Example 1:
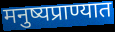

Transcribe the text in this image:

मनुष्यप्राण्यात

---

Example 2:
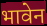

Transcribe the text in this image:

भावेन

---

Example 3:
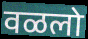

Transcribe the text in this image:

वळलो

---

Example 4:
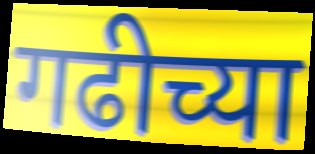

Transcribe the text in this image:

गढीच्या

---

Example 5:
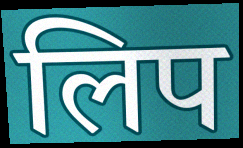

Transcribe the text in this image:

लिप